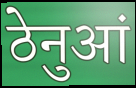
ठेनुआं